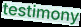
testimony